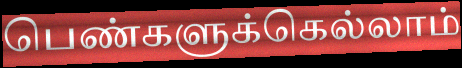
பெண்களுக்கெல்லாம்